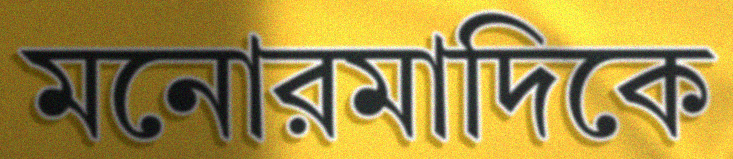
মনোরমাদিকে